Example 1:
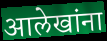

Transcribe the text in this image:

आलेखांना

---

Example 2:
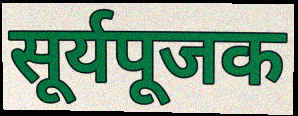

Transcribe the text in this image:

सूर्यपूजक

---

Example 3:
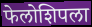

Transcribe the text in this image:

फेलोशिपला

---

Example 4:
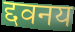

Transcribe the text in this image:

द्दवनय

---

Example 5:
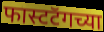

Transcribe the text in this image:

फास्टटॅगच्या